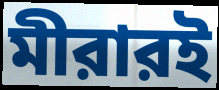
মীরারই